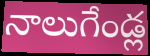
నాలుగేండ్ల